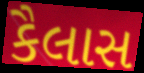
કૈલાસ